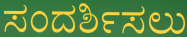
ಸಂದರ್ಶಿಸಲು